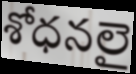
శోధనలై